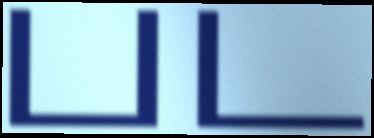
பட